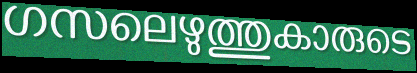
ഗസലെഴുത്തുകാരുടെ